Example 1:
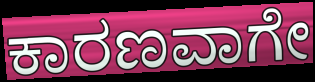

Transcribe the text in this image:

ಕಾರಣವಾಗೇ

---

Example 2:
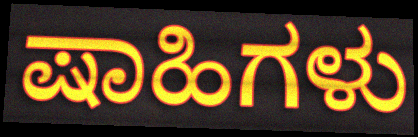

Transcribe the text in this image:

ಷಾಹಿಗಳು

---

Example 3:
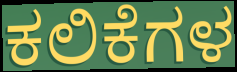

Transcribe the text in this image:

ಕಲಿಕೆಗಳ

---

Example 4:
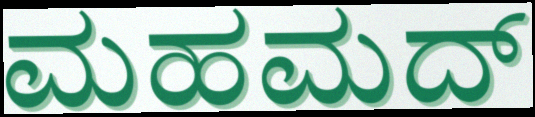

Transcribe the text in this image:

ಮಹಮದ್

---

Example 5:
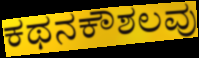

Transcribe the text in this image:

ಕಥನಕೌಶಲವು